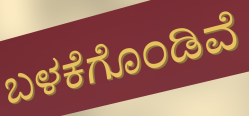
ಬಳಕೆಗೊಂಡಿವೆ